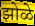
झोळे